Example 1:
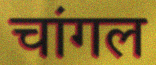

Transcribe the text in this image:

चांगल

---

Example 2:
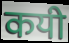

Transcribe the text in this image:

कयी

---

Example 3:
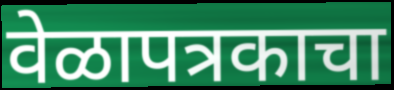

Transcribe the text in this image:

वेळापत्रकाचा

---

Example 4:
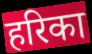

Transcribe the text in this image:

हरिका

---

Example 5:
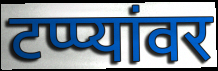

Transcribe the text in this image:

टप्प्यांवर